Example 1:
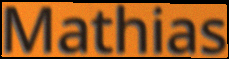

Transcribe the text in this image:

Mathias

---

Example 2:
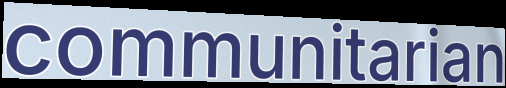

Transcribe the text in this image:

communitarian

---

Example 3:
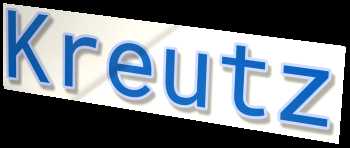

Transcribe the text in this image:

Kreutz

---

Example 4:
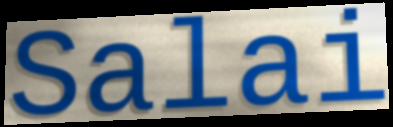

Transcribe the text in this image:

Salai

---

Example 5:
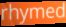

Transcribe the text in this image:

rhymed